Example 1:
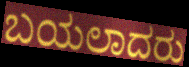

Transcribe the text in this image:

ಬಯಲಾದರು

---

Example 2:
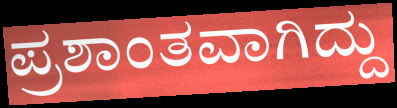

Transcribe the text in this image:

ಪ್ರಶಾಂತವಾಗಿದ್ದು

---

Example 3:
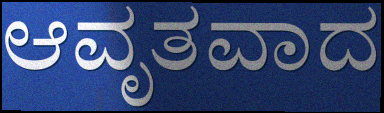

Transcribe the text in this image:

ಆವೃತವಾದ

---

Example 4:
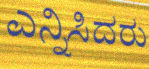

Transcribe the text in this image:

ಎನ್ನಿಸಿದರು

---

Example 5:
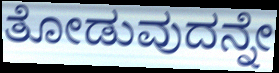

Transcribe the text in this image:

ತೋಡುವುದನ್ನೇ